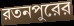
রতনপুরের